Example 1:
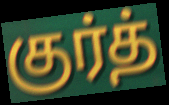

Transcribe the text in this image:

குர்த்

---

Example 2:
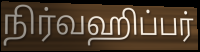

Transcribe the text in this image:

நிர்வஹிப்பர்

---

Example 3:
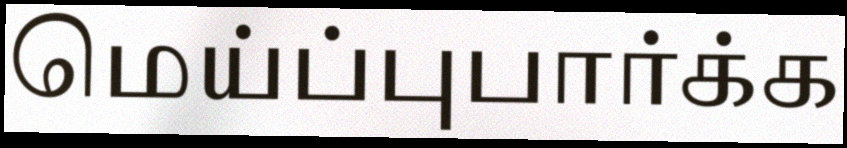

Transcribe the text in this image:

மெய்ப்புபார்க்க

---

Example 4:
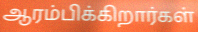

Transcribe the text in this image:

ஆரம்பிக்கிறார்கள்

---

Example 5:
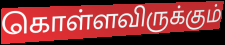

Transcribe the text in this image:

கொள்ளவிருக்கும்